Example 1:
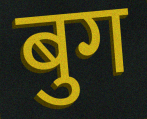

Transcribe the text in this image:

बुग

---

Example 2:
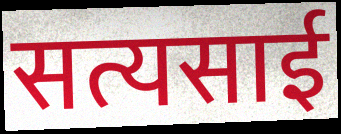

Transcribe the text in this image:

सत्यसाई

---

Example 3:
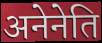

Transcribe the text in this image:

अनेनेति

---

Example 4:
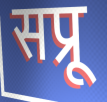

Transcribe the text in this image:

सप्रू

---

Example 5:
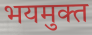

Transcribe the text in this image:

भयमुक्‍त